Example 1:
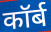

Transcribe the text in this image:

कॉर्ब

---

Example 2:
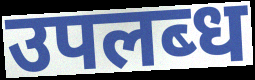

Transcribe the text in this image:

उपलब्‍ध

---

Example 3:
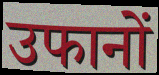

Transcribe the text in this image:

उफानों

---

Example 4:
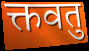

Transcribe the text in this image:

क्तवतु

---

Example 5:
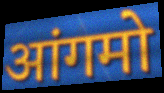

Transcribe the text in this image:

आंगमो